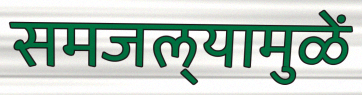
समजल्यामुळें